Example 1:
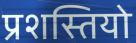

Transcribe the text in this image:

प्रशस्तियो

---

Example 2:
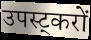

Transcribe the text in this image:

उपस्ट्करों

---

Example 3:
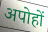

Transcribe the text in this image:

अपोहों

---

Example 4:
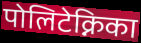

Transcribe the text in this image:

पोलिटेक्निका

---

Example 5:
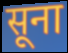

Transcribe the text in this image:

सूना